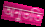
অনুভতি